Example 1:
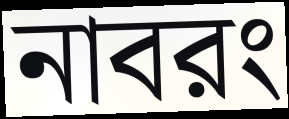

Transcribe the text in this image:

নাবরং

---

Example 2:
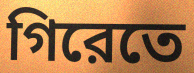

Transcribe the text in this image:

গিরেতে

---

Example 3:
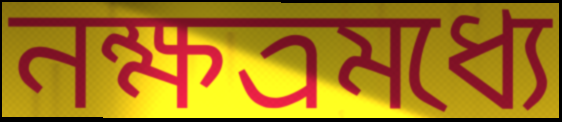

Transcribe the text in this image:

নক্ষত্রমধ্যে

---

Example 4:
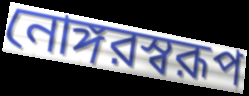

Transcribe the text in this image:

নোঙ্গরস্বরূপ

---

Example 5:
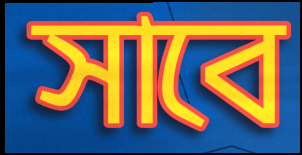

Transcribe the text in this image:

সাবে